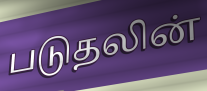
படுதலின்